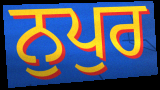
ਨੁਪੁਰ